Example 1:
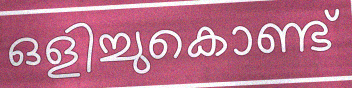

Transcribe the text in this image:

ഒളിച്ചുകൊണ്ട്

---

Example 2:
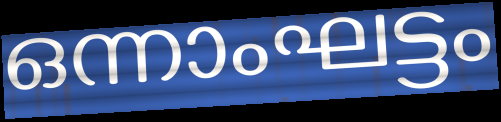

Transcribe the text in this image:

ഒന്നാംഘട്ടം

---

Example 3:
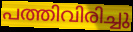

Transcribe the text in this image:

പത്തിവിരിച്ചു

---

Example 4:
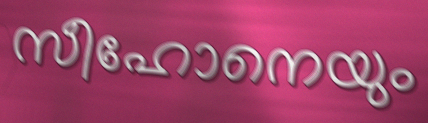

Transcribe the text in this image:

സീഹോനെയും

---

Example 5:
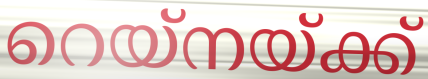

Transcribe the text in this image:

റെയ്നയ്ക്ക്